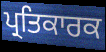
ਪ੍ਰਤਿਕਾਰਕ